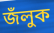
জঁলুক